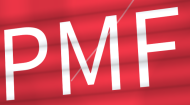
PMF